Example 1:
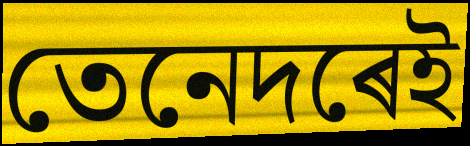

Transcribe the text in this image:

তেনেদৰেই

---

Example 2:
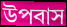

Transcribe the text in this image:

উপবাস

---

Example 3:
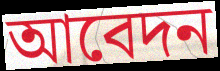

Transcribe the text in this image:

আবেদন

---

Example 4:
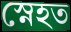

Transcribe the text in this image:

স্নেহত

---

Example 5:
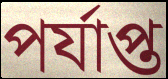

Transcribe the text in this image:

পৰ্যাপ্ত